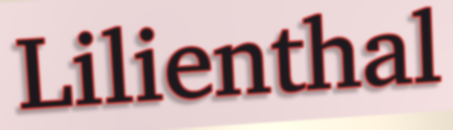
Lilienthal